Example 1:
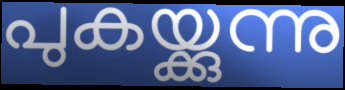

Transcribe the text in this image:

പുകയ്ക്കുന്നു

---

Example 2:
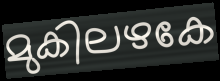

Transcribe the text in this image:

മുകിലഴകേ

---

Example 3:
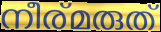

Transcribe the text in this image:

നീര്മരുത്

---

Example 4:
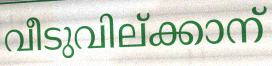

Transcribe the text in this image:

വീടുവില്ക്കാന്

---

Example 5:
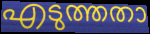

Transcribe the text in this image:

എടുത്തതാ